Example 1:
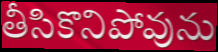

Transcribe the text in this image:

తీసికొనిపోవును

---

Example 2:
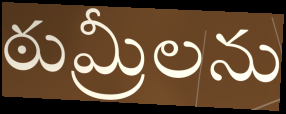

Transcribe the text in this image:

ఠుమ్రీలను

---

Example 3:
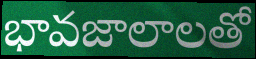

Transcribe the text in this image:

భావజాలాలతో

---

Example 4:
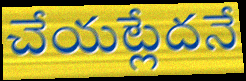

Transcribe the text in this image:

చేయట్లేదనే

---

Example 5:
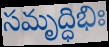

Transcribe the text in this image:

సమృద్ధిభిః